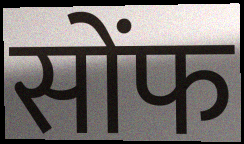
सोंफ